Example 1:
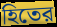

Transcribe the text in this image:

হিতের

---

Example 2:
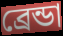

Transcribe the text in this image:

ব্রেন্ডা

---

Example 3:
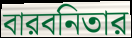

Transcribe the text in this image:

বারবনিতার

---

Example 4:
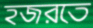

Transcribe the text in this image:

হজরতে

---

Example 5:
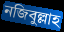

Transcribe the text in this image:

নজিবুল্লাহ